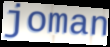
joman